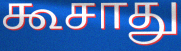
கூசாது